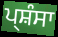
ਪ੍ਸ਼ੰਸਾ